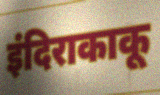
इंदिराकाकू